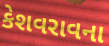
કેશવરાવના